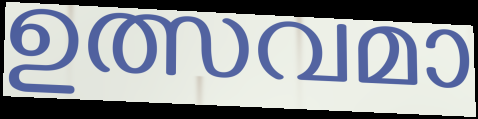
ഉത്സവമാ